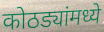
कोठड्यांमध्ये